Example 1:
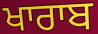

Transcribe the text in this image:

ਖਾਰਾਬ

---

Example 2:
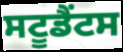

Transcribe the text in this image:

ਸਟੂਡੈਂਟਸ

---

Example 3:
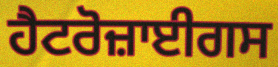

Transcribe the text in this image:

ਹੈਟਰੋਜ਼ਾਈਗਸ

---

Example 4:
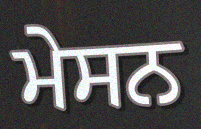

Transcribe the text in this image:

ਮੇਸਨ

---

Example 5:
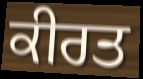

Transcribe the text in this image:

ਕੀਰਤ